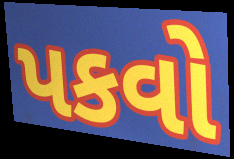
પકવો